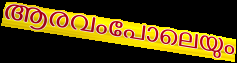
ആരവംപോലെയും